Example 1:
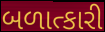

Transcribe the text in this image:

બળાત્કારી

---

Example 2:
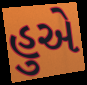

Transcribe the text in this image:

હુએ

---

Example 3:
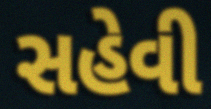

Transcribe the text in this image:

સહેવી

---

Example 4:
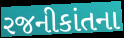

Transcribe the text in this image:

રજનીકાંતના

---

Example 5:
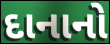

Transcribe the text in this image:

દાનાનો